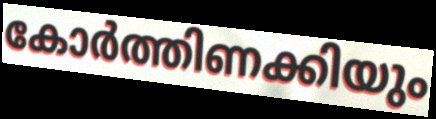
കോർത്തിണക്കിയും